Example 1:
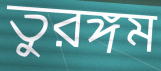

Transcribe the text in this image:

তুরঙ্গম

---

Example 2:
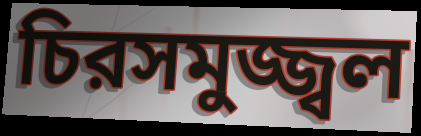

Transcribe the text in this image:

চিরসমুজ্জ্বল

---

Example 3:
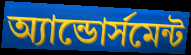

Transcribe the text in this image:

অ্যান্ডোর্সমেন্ট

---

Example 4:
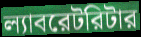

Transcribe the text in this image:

ল্যাবরেটরিটার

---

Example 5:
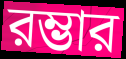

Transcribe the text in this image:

রম্ভার